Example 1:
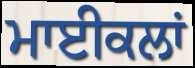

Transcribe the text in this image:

ਮਾਈਕਲਾਂ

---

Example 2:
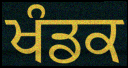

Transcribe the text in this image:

ਖੰਡਕ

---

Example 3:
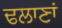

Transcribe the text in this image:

ਢਲਾਣਾਂ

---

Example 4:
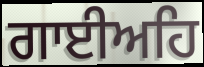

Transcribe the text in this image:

ਗਾਈਅਹਿ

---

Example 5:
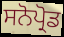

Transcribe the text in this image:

ਸਨੋਪ੍ਰੋਡ